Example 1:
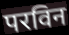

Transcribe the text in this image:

परविन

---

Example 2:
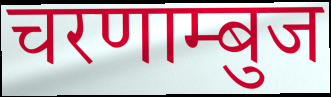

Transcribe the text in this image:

चरणाम्बुज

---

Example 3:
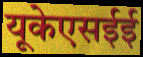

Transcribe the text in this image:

यूकेएसईई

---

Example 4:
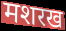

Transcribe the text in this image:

मशरख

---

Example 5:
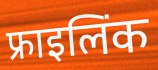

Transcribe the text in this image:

फ्राइलिंक